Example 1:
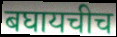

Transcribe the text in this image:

बघायचीच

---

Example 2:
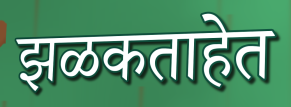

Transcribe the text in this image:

झळकताहेत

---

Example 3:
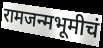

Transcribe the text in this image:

रामजन्मभूमीचं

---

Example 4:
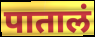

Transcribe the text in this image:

पातालं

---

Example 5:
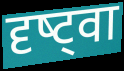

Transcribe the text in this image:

दृष्ट्‍वा